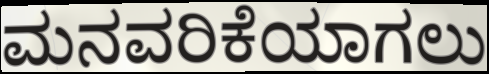
ಮನವರಿಕೆಯಾಗಲು